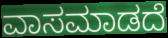
ವಾಸಮಾಡದೆ